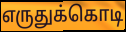
எருதுக்கொடி